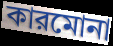
কারমোনা